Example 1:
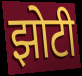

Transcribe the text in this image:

झोटी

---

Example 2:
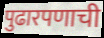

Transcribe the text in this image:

पुढारपणाची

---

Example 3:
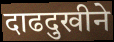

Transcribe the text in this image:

दाढदुखीने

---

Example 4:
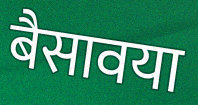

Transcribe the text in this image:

बैसावया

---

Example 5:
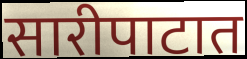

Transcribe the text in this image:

सारीपाटात